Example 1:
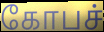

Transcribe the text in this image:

கோபச்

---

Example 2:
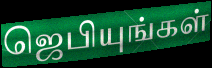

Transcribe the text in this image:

ஜெபியுங்கள்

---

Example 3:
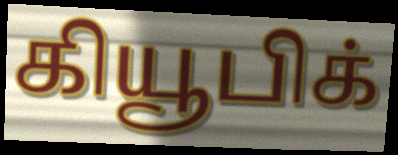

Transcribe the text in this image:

கியூபிக்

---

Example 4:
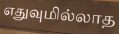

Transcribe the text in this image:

எதுவுமில்லாத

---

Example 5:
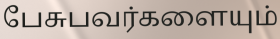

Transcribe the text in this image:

பேசுபவர்களையும்